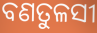
ବଣତୁଳସୀ